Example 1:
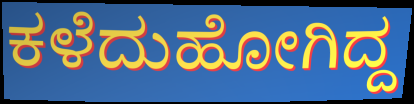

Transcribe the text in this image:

ಕಳೆದುಹೋಗಿದ್ದ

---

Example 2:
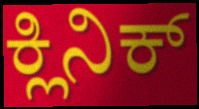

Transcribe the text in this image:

ಕ್ಲಿನಿಕ್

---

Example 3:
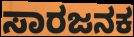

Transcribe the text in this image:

ಸಾರಜನಕ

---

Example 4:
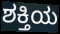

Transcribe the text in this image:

ಶಕ್ತಿಯ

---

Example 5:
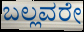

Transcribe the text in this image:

ಬಲ್ಲವರೇ